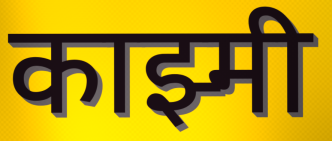
काझ्मी